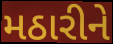
મઠારીને